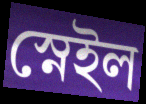
স্নেইল